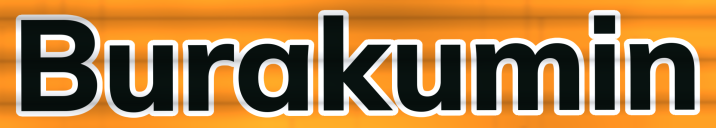
Burakumin